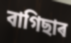
বাগিছাৰ